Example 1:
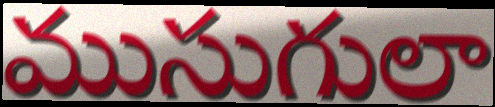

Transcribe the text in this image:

ముసుగులా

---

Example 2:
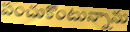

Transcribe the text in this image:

పంచుకొంటున్నాను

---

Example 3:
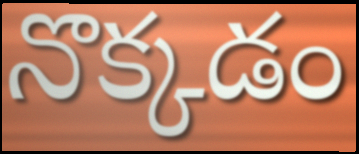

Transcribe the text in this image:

నొక్కడం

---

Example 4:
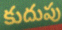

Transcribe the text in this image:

కుదుపు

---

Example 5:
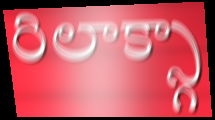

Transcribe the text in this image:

రిలాక్స్గా